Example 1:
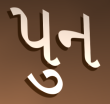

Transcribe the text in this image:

પુન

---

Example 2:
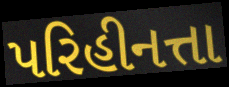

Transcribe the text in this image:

પરિહીનત્તા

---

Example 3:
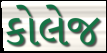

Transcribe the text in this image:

કોલેજ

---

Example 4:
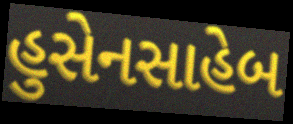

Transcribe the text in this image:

હુસેનસાહેબ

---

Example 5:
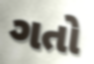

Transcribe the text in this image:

ગતો